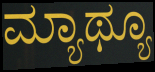
ಮ್ಯಾಥ್ಯೂ